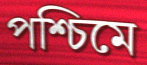
পশ্চিমে